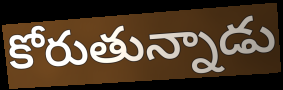
కోరుతున్నాడు